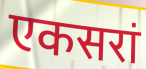
एकसरां